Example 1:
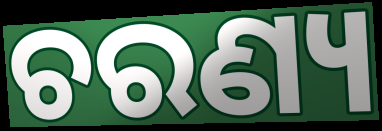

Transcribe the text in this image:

ଚରଣ୍ୟ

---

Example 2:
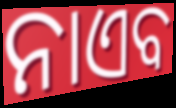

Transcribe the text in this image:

ନାଏବ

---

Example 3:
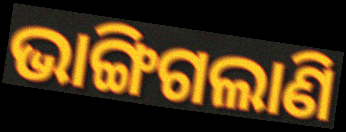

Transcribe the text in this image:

ଭାଙ୍ଗିଗଲାଣି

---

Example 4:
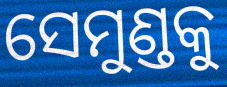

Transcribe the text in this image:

ସେମୁଣ୍ଡକୁ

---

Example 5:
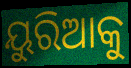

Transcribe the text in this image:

ୟୁରିଆକୁ